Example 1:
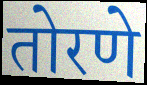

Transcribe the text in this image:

तोरणे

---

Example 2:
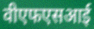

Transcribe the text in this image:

वीएफएसआई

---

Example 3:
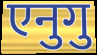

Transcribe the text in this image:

एनुगु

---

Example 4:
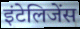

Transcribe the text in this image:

इंटेलिजेंस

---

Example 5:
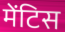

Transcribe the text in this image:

मेंटिस